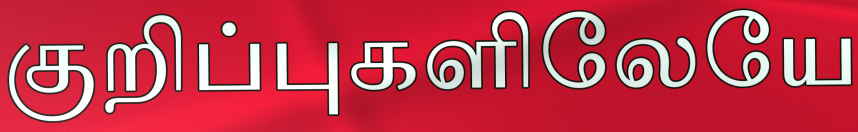
குறிப்புகளிலேயே